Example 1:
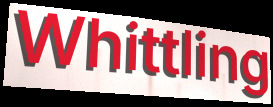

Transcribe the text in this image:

Whittling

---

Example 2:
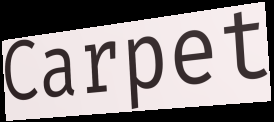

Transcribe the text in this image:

Carpet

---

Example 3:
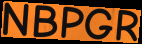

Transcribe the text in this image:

NBPGR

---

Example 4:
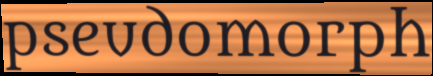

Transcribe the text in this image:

pseudomorph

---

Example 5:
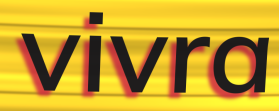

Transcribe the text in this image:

vivra